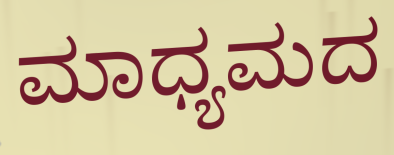
ಮಾಧ್ಯಮದ